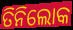
ତିନିଲୋକ